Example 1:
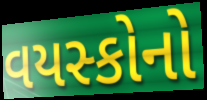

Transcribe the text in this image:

વયસ્કોનો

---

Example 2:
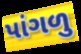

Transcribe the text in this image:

પાંગળુ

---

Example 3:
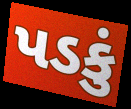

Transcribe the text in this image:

પડકું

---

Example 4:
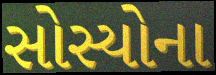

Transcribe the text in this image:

સોસ્યોના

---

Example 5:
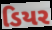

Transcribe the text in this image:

ડિયર